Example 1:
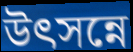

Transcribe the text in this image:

উৎসন্নে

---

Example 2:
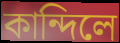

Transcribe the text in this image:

কান্দিলে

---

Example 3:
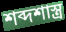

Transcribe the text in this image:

শব্দশাস্ত্র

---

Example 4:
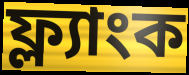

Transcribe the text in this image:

ফ্ল্যাংক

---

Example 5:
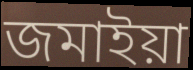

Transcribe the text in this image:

জমাইয়া